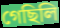
গেছিলি